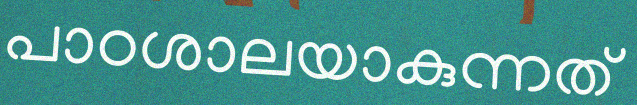
പാഠശാലയാകുന്നത്